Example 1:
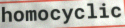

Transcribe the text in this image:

homocyclic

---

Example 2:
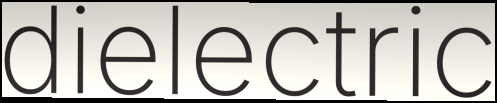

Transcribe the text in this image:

dielectric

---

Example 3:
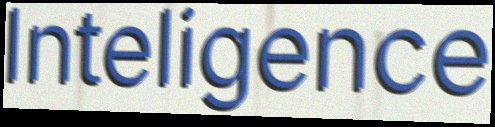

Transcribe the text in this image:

Inteligence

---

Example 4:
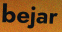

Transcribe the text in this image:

bejar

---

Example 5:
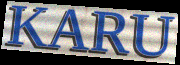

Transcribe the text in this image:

KARU